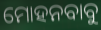
ମୋହନବାବୁ